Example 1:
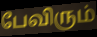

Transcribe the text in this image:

பேவிரும்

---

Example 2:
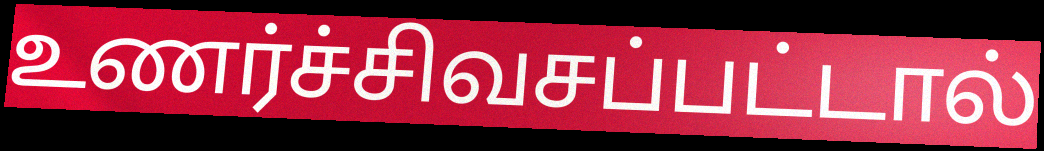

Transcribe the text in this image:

உணர்ச்சிவசப்பட்டால்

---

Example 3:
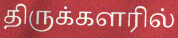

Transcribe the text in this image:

திருக்களரில்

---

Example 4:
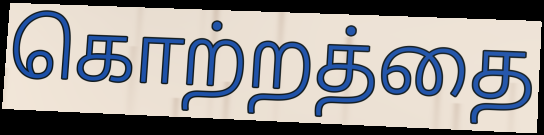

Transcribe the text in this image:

கொற்றத்தை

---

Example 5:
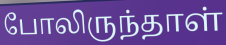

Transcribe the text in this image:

போலிருந்தாள்